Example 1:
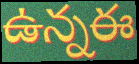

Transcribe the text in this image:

ఉన్నఈ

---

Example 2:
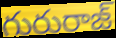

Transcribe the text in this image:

గురురాజ్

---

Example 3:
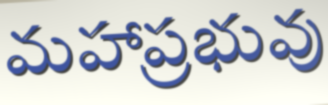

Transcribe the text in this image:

మహాప్రభువు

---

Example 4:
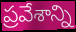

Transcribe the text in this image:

ప్రవేశాన్ని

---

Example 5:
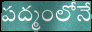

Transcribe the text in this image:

పద్మంలోనే